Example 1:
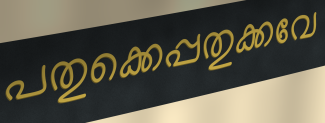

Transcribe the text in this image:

പതുക്കെപ്പതുക്കവേ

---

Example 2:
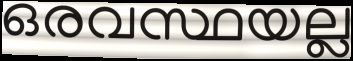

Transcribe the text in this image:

ഒരവസ്ഥയല്ല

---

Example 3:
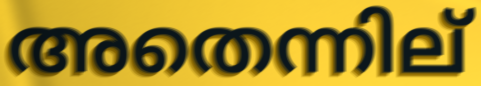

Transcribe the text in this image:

അതെന്നില്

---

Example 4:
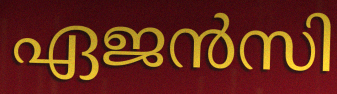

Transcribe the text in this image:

ഏജൻസി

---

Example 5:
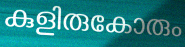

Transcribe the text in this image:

കുളിരുകോരും